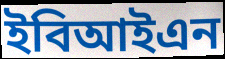
ইবিআইএন